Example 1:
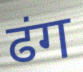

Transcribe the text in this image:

ढंग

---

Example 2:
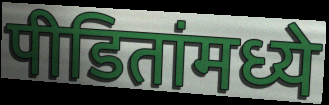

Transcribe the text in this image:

पीडितांमध्ये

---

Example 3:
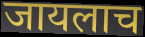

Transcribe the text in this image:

जायलाच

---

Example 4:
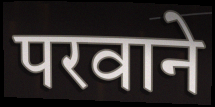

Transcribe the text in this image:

परवाने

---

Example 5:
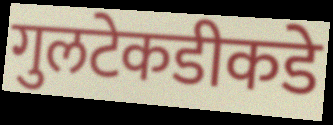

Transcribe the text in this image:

गुलटेकडीकडे